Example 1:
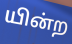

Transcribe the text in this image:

யின்ற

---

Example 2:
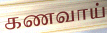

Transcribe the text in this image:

கணவாய்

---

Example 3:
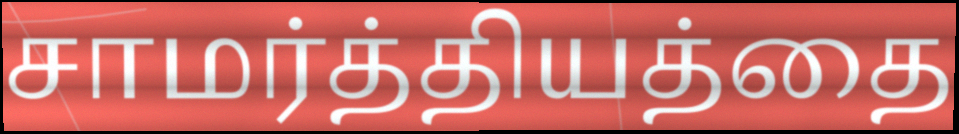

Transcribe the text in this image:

சாமர்த்தியத்தை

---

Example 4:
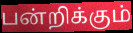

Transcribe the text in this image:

பன்றிக்கும்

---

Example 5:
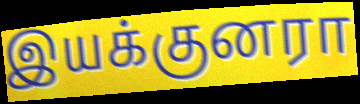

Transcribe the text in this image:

இயக்குனரா